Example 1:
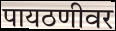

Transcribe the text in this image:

पायठणीवर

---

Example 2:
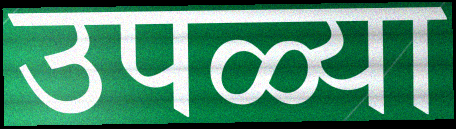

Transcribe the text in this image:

उपळ्या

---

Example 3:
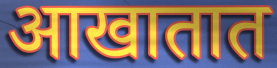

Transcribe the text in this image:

आखातात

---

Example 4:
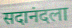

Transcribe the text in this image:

सदानंदला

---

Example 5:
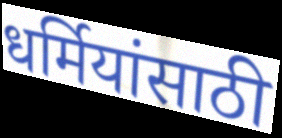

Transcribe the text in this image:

धर्मियांसाठी